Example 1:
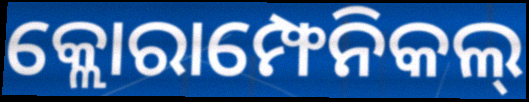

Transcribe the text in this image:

କ୍ଲୋରାମ୍ଫେନିକଲ୍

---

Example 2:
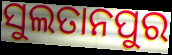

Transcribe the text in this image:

ସୁଲତାନପୁର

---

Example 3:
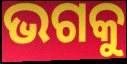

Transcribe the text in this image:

ଭଗକୁ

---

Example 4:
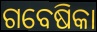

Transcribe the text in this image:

ଗବେଷିକା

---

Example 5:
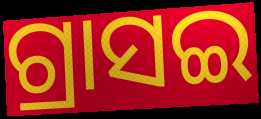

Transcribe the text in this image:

ଗ୍ରାସଇ